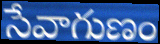
సేవాగుణం